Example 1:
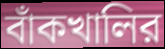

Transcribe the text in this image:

বাঁকখালির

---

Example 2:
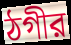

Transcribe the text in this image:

ঠগীর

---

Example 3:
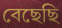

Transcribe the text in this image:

বেছেছি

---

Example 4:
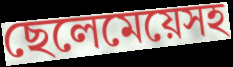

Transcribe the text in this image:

ছেলেমেয়েসহ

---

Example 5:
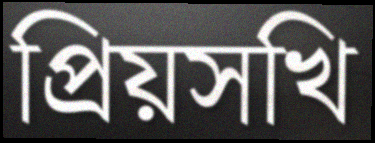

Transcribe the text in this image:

প্রিয়সখি